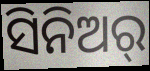
ସିନିଅର୍